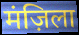
मंज़िला